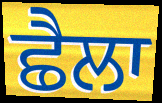
ਛੈਲਾ